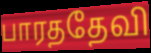
பாரததேவி